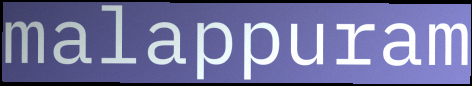
malappuram